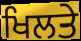
ਖਿਲਤੇ